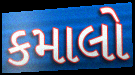
કમાલો